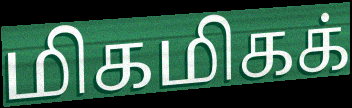
மிகமிகக்